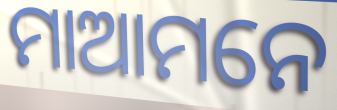
ମାଆମନେ